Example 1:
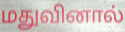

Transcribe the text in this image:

மதுவினால்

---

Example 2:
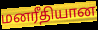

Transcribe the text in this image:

மனரீதியான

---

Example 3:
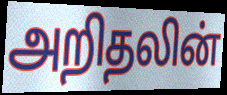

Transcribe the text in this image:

அறிதலின்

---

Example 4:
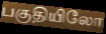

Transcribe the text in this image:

பகுதியிலோ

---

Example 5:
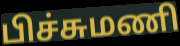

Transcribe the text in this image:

பிச்சுமணி